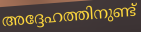
അദ്ദേഹത്തിനുണ്ട്